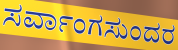
ಸರ್ವಾಂಗಸುಂದರ